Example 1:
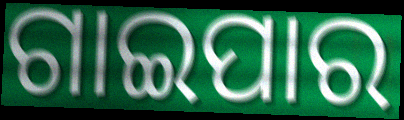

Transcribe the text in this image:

ଗାଇପାର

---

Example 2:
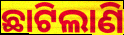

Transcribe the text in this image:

ଛାଟିଲାଣି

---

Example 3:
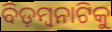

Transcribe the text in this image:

ବିଡ଼ମ୍ବନାଟିକୁ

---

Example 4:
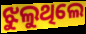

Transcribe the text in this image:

ଝୁଲୁଥିଲେ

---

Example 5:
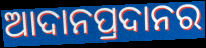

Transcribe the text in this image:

ଆଦାନପ୍ରଦାନର